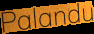
Palandu